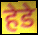
हेडे